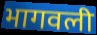
भागवली